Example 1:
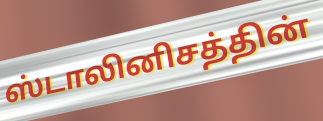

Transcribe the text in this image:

ஸ்டாலினிசத்தின்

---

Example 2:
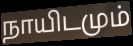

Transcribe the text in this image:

நாயிடமும்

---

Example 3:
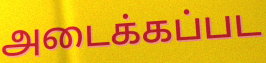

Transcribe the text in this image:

அடைக்கப்பட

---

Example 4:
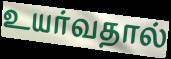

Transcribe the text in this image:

உயர்வதால்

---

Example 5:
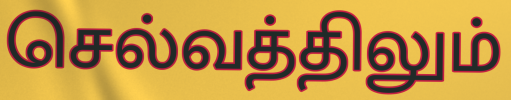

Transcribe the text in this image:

செல்வத்திலும்